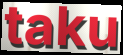
taku